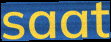
saat